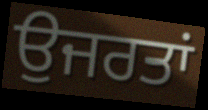
ਉਜਰਤਾਂ